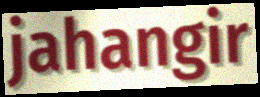
jahangir